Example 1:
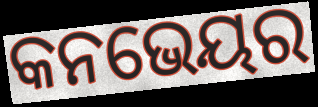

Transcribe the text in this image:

କନଭେୟର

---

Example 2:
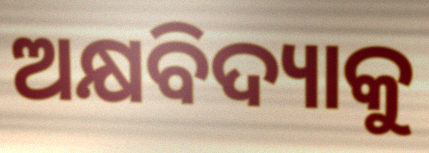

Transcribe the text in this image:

ଅକ୍ଷବିଦ୍ୟାକୁ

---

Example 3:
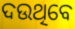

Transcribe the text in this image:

ଦଉଥିବେ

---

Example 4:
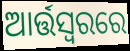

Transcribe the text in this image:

ଆର୍ତ୍ତସ୍ଵରରେ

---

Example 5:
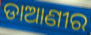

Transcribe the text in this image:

ଡାଆଣୀର